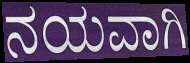
ನಯವಾಗಿ